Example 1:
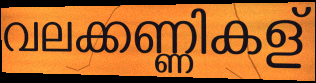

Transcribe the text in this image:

വലക്കണ്ണികള്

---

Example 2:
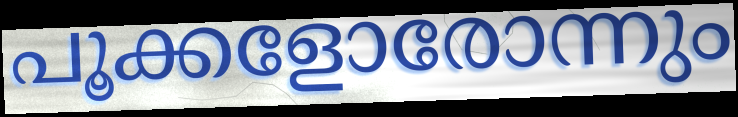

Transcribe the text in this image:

പൂക്കളോരോന്നും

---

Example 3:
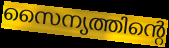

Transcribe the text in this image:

സൈന്യത്തിന്റെ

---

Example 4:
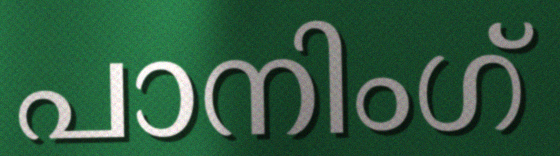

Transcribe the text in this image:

പാനിംഗ്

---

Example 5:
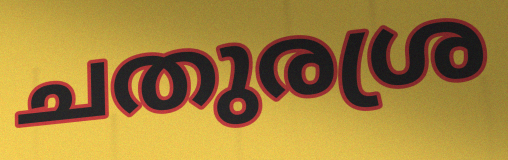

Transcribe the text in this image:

ചതുരശ്ര